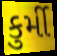
કુર્મી